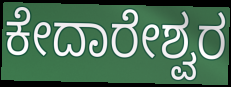
ಕೇದಾರೇಶ್ವರ